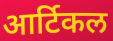
आर्टिकल